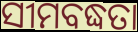
ସୀମବଦ୍ଧତା